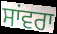
ਸਾਂਵਰਾ